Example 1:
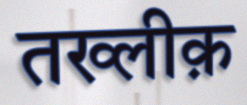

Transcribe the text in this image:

तख्लीक़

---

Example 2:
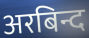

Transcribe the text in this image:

अरबिन्द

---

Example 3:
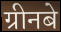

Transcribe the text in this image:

ग्रीनबे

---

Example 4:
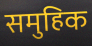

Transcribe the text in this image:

समुहिक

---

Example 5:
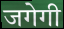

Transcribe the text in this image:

जगेगी